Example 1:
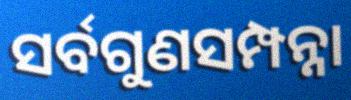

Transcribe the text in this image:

ସର୍ବଗୁଣସମ୍ପନ୍ନା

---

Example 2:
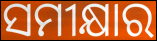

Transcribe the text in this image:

ସମୀକ୍ଷାର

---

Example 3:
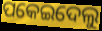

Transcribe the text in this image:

ପକେଇଦେଲୁ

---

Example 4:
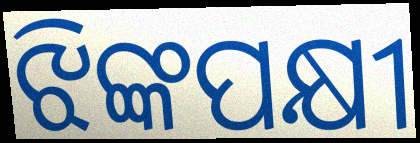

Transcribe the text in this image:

ଝିଙ୍କପକ୍ଷୀ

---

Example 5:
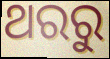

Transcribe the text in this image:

ଥରରୁ